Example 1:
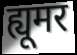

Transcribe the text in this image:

ह्यूमर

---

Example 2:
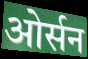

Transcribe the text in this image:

ओर्सन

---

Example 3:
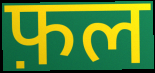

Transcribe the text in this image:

फ़ल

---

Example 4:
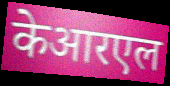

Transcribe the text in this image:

केआरएल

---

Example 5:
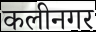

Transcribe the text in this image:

कलीनगर